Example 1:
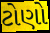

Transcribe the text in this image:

ટોણો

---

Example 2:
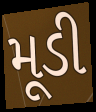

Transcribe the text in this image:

મૂડી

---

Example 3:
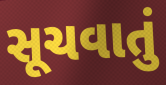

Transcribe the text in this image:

સૂચવાતું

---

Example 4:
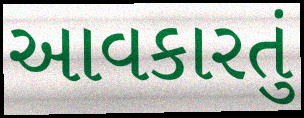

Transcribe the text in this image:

આવકારતું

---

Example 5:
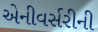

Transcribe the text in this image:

એનીવર્સરીની